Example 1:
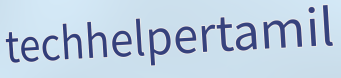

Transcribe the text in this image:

techhelpertamil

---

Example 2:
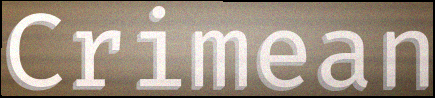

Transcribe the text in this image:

Crimean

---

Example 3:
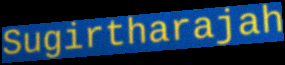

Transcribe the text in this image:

Sugirtharajah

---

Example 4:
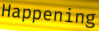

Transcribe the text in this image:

Happening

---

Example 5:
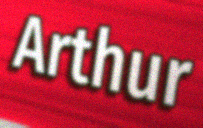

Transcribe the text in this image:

Arthur